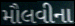
મૌલવીના